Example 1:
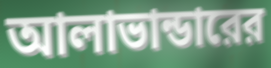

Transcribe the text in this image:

আলাভান্ডারের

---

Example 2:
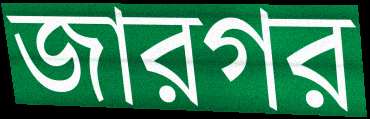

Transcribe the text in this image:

জারগর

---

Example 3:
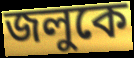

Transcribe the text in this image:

জলুকে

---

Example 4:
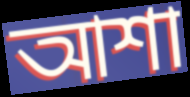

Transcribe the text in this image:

আশা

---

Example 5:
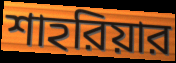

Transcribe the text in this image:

শাহরিয়ার